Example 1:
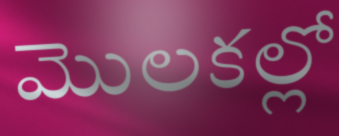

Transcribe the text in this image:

మొలకల్లో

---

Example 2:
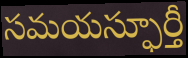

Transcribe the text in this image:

సమయస్ఫూర్తీ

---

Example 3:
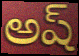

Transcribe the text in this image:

అష్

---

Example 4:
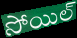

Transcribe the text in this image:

సోయిల్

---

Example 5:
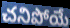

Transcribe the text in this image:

చనిపోయే